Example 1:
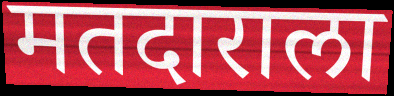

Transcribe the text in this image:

मतदाराला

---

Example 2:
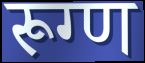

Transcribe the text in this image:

रूग्ण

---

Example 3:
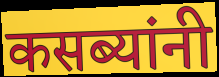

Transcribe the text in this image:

कसब्यांनी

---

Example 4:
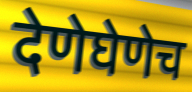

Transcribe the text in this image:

देणेघेणेच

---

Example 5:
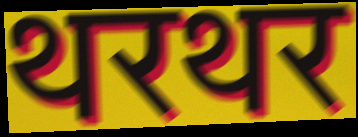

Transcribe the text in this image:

थरथर